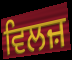
ਵਿਲਜ਼